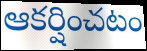
ఆకర్షించటం